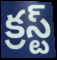
క్రస్ట్